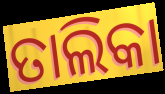
ତାଲିକା